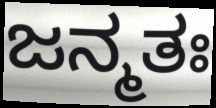
ಜನ್ಮತಃ